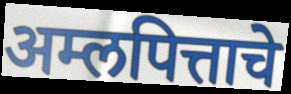
अम्लपित्ताचे